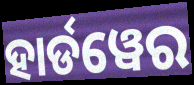
ହାର୍ଡୱେର